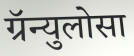
ग्रॅन्युलोसा